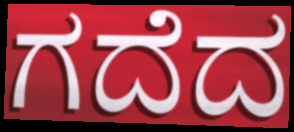
ಗದೆದ